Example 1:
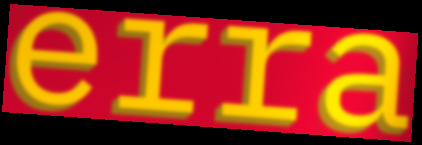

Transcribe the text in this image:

erra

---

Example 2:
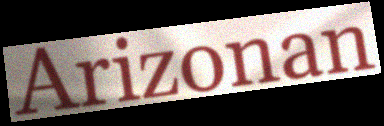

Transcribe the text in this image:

Arizonan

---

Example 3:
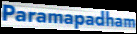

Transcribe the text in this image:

Paramapadham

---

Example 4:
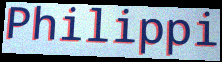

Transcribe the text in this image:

Philippi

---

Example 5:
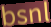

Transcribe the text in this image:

bsnl